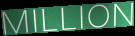
MILLION